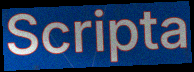
Scripta